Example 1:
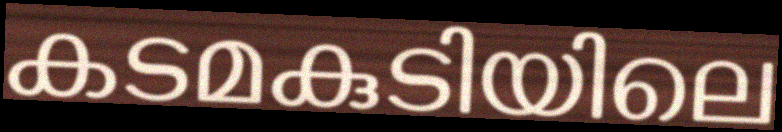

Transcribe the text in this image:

കടമകുടിയിലെ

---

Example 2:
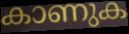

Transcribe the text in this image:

കാണുക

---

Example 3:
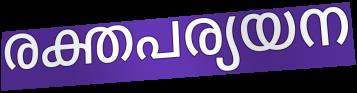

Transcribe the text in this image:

രക്തപര്യയന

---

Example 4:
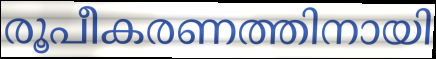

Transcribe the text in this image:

രൂപീകരണത്തിനായി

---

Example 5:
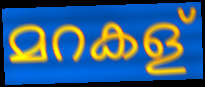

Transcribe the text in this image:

മറകള്